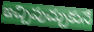
ఇచ్చిపుచ్చుకునే